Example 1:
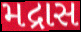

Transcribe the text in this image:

મદ્રાસ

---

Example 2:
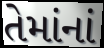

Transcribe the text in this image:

તેમાંનાં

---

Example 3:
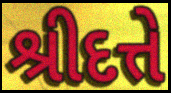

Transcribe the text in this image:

શ્રીદત્તે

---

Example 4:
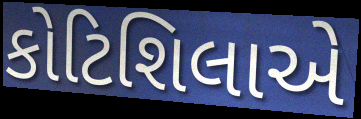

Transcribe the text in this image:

કોટિશિલાએ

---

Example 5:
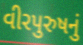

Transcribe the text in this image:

વીરપુરુષનું